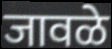
जावळे